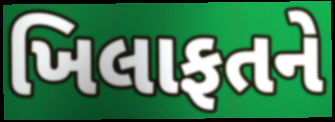
ખિલાફતને